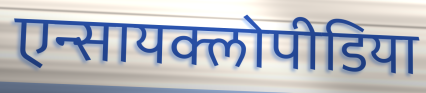
एन्सायक्लोपीडिया